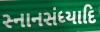
સ્નાનસંધ્યાદિ